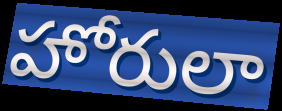
హోరులా